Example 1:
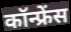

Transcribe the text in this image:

कॉन्फ्रेंस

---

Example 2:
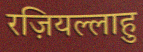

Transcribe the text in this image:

रज़ियल्लाहु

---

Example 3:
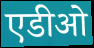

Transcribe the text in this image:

एडीओ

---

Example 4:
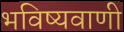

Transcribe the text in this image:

भविष्यवाणी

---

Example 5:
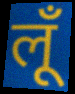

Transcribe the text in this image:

लूँ